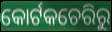
କୋର୍ଟକଚେରିରୁ